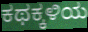
ಕಥಕ್ಕಳಿಯ